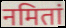
नमितां